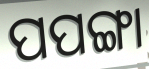
ପପଙ୍ଗା